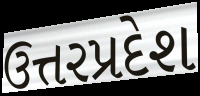
ઉત્તરપ્રદેશ